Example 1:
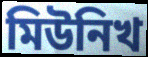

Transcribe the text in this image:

মিউনিখ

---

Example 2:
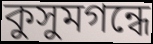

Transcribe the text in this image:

কুসুমগন্ধে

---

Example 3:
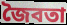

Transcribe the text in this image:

জৈবতা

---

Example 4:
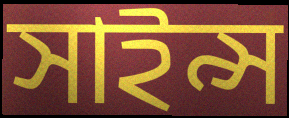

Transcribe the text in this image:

সাইন্স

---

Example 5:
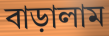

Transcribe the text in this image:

বাড়ালাম